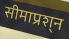
सीमाप्रश्न